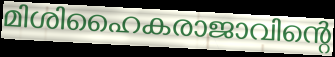
മിശിഹൈകരാജാവിന്റെ